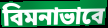
বিমনাভাবে